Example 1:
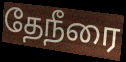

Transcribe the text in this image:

தேநீரை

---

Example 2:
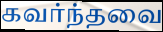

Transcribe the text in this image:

கவர்ந்தவை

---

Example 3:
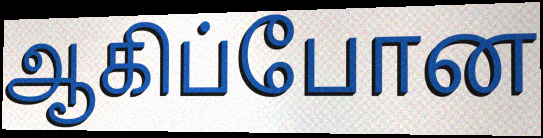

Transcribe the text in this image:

ஆகிப்போன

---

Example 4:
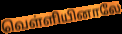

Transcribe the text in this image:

வெள்ளியினாலே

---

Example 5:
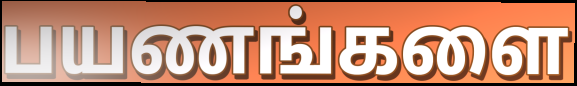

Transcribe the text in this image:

பயணங்களை